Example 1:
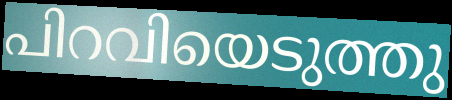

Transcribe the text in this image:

പിറവിയെടുത്തു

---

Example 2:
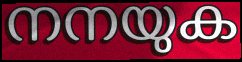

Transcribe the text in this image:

നനയുക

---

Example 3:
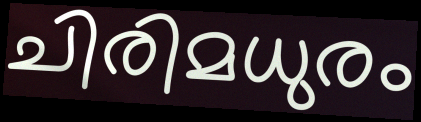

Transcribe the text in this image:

ചിരിമധുരം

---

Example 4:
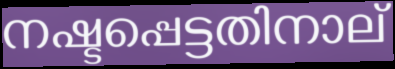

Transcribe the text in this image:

നഷ്ടപ്പെട്ടതിനാല്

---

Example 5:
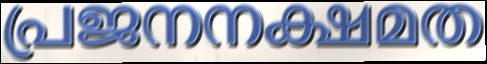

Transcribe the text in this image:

പ്രജനനക്ഷമത